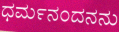
ಧರ್ಮನಂದನನು